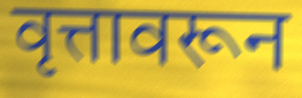
वृत्तावरून